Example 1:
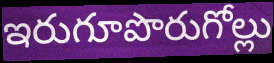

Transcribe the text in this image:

ఇరుగూపొరుగోల్లు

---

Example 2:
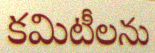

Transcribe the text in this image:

కమిటీలను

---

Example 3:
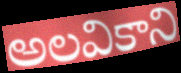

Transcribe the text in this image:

అలవికాని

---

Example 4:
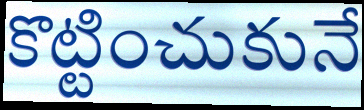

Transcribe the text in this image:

కొట్టించుకునే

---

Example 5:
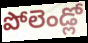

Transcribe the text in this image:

పోలెండ్లో